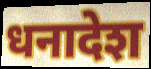
धनादेश